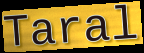
Taral